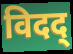
विदद्